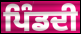
ਪਿੰਡਦੀ